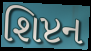
શિપ્ટન